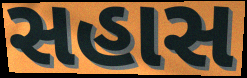
સહાસ